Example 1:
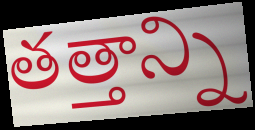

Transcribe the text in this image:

తత్తాన్ని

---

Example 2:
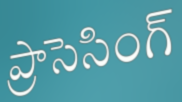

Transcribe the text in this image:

ప్రాసెసింగ్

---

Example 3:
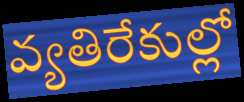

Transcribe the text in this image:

వ్యతిరేకుల్లో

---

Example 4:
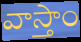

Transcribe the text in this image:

వాస్తాం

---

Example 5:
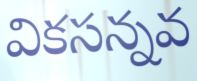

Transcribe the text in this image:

వికసన్నవ